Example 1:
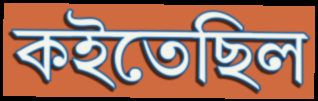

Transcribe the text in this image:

কইতেছিল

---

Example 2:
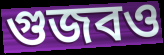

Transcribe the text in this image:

গুজবও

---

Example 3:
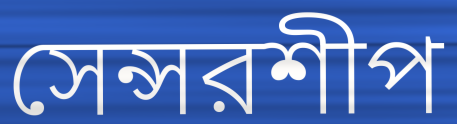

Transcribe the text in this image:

সেন্সরশীপ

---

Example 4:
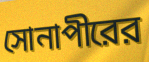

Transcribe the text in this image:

সোনাপীরের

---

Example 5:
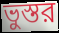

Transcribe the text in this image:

ভুস্তর